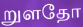
றுளதோ